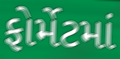
ફોર્મેટમાં